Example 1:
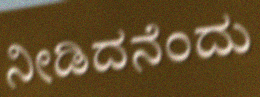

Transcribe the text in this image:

ನೀಡಿದನೆಂದು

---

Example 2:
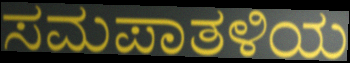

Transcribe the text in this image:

ಸಮಪಾತಳಿಯ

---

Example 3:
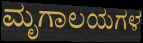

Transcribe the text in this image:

ಮೃಗಾಲಯಗಳ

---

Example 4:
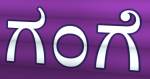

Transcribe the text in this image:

ಗಂಗೆ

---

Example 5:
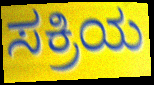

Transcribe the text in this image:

ಸಕ್ರಿಯ